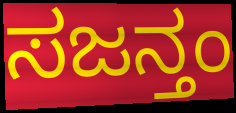
ಸಜನ್ತಂ